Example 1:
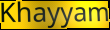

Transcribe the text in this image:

Khayyam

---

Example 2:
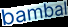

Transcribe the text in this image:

bambal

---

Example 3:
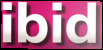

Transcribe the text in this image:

ibid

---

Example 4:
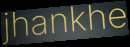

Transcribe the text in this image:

jhankhe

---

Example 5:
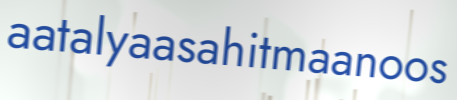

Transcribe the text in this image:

aatalyaasahitmaanoos